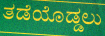
ತಡೆಯೊಡ್ಡಲು